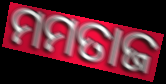
ମମତାଜ